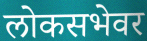
लोकसभेवर